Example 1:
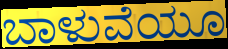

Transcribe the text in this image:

ಬಾಳುವೆಯೂ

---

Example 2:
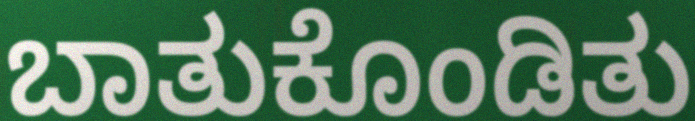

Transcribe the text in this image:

ಬಾತುಕೊಂಡಿತು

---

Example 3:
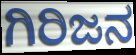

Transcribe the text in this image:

ಗಿರಿಜನ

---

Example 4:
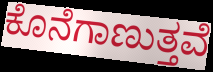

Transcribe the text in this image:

ಕೊನೆಗಾಣುತ್ತವೆ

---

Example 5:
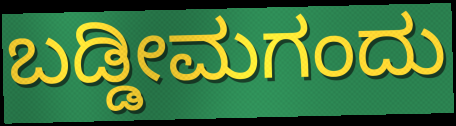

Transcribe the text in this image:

ಬಡ್ಡೀಮಗಂದು